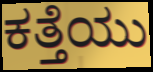
ಕತ್ತೆಯು